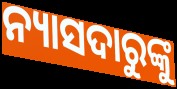
ନ୍ୟାସଦାରୁଙ୍କୁ